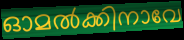
ഓമൽക്കിനാവേ